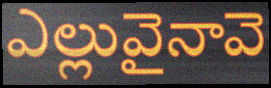
ఎల్లువైనావె